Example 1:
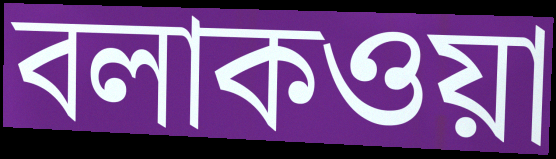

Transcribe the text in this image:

বলাকওয়া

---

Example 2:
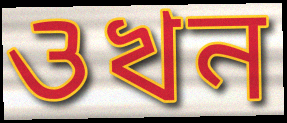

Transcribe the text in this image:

ওখন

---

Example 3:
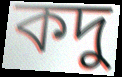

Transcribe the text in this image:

কদু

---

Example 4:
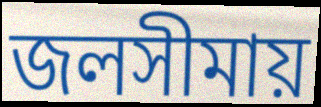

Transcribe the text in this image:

জলসীমায়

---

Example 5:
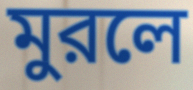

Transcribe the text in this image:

মুরলে